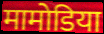
मामोडिया